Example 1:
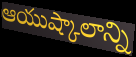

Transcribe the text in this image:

ఆయుష్కాలాన్ని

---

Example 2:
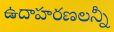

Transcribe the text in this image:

ఉదాహరణలన్నీ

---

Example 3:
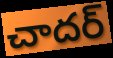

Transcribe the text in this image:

చాదర్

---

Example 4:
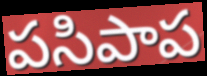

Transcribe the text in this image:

పసిపాప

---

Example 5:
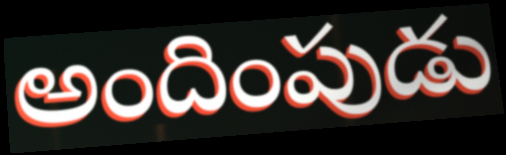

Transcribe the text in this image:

అందింపుడు